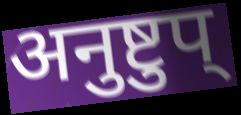
अनुष्टुप्